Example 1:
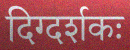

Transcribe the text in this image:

दिग्दर्शकः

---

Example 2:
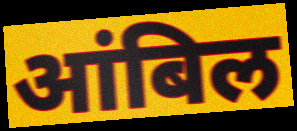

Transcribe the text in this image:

आंबिल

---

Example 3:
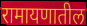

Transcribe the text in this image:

रामायणातील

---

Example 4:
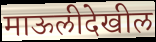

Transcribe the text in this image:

माऊलीदेखील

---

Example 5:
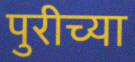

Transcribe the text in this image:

पुरीच्या